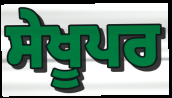
ਸੇਖੂਪਰ